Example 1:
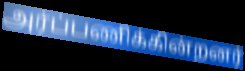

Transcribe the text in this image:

அர்ப்பணிக்கின்றனர்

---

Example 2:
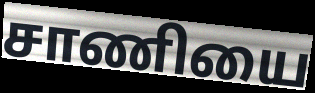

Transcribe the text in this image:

சாணியை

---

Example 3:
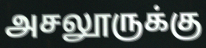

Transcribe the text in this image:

அசலூருக்கு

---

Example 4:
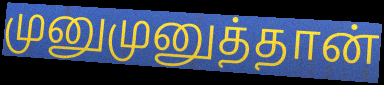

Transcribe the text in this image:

முனுமுனுத்தான்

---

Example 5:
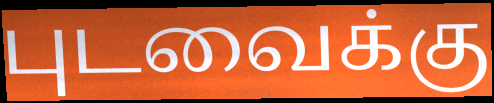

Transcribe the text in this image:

புடவைக்கு